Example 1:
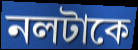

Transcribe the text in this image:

নলটাকে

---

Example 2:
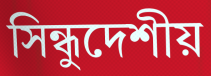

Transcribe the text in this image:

সিন্ধুদেশীয়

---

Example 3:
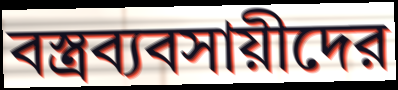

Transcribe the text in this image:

বস্ত্রব্যবসায়ীদের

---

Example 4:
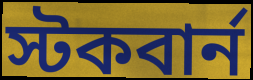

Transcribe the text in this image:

স্টকবার্ন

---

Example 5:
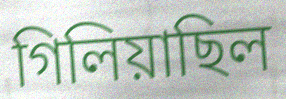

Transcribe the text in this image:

গিলিয়াছিল